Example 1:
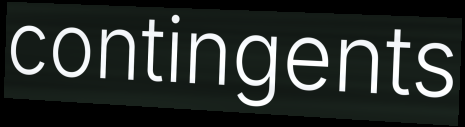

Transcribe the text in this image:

contingents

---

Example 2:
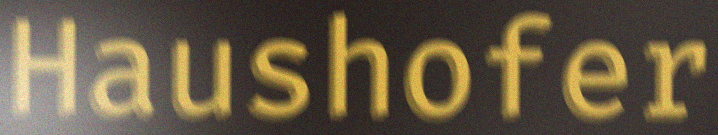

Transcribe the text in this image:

Haushofer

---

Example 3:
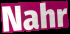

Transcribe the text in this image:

Nahr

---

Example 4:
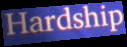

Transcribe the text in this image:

Hardship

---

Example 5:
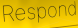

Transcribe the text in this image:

Respond